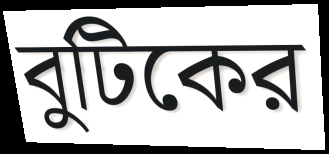
বুটিকের